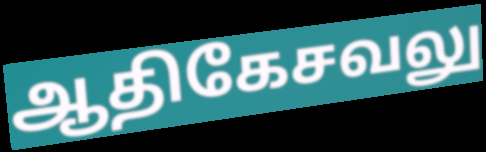
ஆதிகேசவலு